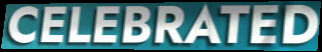
CELEBRATED